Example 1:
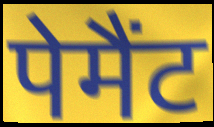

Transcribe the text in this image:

पेमैंट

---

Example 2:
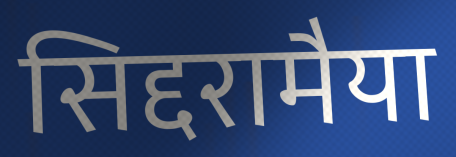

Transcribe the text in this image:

सिद्दरामैया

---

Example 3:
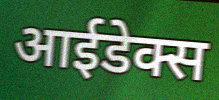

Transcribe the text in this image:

आईडेक्स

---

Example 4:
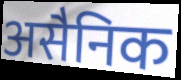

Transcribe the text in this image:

असैनिक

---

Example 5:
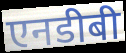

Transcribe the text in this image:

एनडीबी